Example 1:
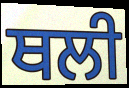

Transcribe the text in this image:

ਥਲੀ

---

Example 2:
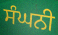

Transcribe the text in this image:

ਸੰਘਨੀ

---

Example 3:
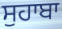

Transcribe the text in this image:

ਸੁਹਾਬਾ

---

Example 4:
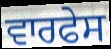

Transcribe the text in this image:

ਵਾਰਫੇਸ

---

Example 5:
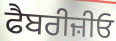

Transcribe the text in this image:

ਫੈਬਰੀਜ਼ੀਓ